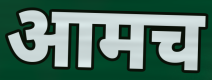
आमच